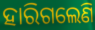
ହାରିଗଲେଣି